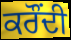
ਕਰੌਂਦੀ